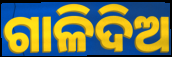
ଗାଳିଦିଅ